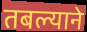
तबल्याने